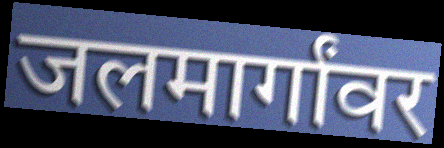
जलमार्गांवर